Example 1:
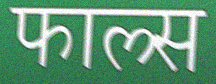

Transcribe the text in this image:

फाल्स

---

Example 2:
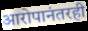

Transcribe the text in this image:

आरोपानंतरही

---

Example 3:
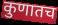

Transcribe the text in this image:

कुणातच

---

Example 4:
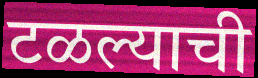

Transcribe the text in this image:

टळल्याची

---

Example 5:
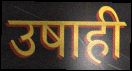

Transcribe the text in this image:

उषाही